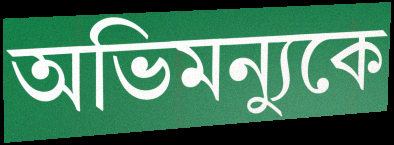
অভিমন্যুকে